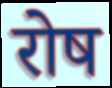
रोष